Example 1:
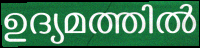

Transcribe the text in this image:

ഉദ്യമത്തിൽ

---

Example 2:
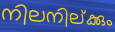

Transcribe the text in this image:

നിലനില്ക്കും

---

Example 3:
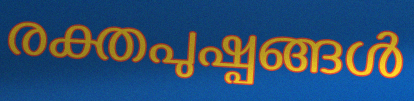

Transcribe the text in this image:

രക്തപുഷ്പങ്ങൾ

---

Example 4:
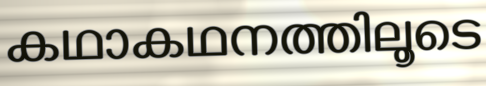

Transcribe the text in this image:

കഥാകഥനത്തിലൂടെ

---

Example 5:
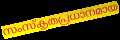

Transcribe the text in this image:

സംസ്‌കൃതപ്രധാനമായ